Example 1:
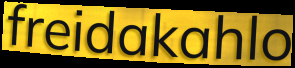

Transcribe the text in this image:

freidakahlo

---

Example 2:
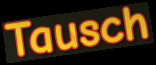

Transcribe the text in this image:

Tausch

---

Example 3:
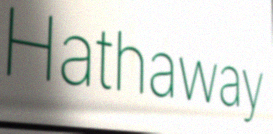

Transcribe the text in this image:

Hathaway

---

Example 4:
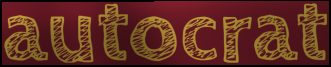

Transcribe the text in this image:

autocrat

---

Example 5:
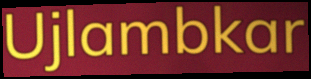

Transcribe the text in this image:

Ujlambkar